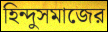
হিন্দুসমাজের